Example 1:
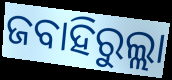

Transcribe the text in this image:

ଜବାହିରୁଲ୍ଲା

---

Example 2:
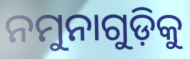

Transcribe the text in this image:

ନମୁନାଗୁଡ଼ିକୁ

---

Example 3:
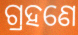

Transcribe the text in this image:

ଗ୍ରହଣେ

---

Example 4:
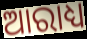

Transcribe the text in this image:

ଆରାଧ୍ୟ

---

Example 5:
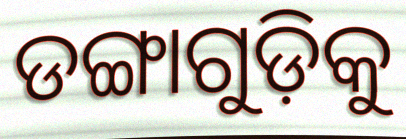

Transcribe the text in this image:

ଡଙ୍ଗାଗୁଡ଼ିକୁ